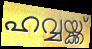
ഹവ്വയ്ക്ക്